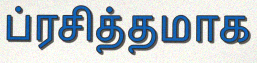
ப்ரசித்தமாக